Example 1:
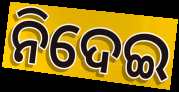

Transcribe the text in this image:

ନିଦେଇ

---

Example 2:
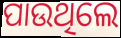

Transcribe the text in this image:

ପାଉଥିଲେ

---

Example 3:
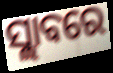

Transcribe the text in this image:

ସ୍ଲାବରେ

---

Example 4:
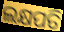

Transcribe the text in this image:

ଲକ୍ଷପତି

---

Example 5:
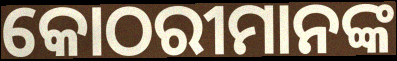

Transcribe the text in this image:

କୋଠରୀମାନଙ୍କ